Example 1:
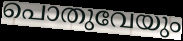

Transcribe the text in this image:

പൊതുവേയും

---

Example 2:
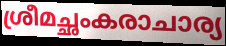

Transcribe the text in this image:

ശ്രീമച്ഛംകരാചാര്യ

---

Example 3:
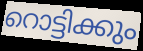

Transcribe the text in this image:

റൊട്ടിക്കും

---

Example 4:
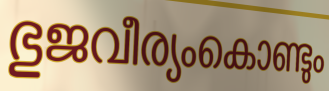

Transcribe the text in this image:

ഭുജവീര്യംകൊണ്ടും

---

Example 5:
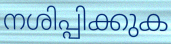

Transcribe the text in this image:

നശിപ്പിക്കുക